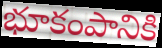
భూకంపానికి